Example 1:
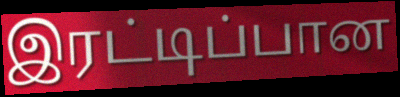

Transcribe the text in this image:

இரட்டிப்பான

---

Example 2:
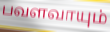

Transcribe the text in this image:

பவளவாயும்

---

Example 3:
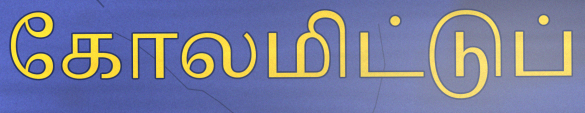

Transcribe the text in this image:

கோலமிட்டுப்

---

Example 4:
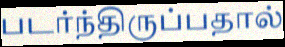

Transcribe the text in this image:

படர்ந்திருப்பதால்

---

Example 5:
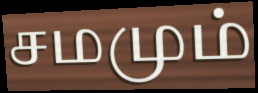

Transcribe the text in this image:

சமமும்